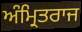
ਅੰਮ੍ਰਿਤਰਾਜ